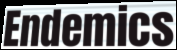
Endemics